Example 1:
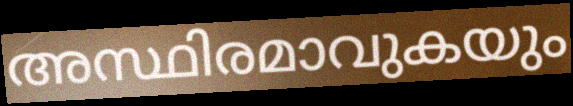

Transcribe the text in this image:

അസ്ഥിരമാവുകയും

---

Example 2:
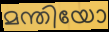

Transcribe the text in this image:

മന്തിയോ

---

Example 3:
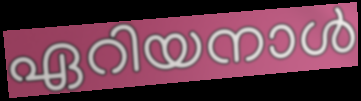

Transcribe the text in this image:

ഏറിയനാൾ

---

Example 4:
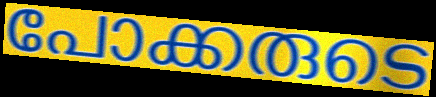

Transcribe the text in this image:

പോക്കരുടെ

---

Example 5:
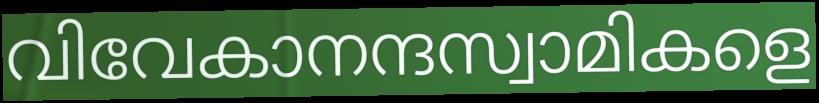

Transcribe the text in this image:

വിവേകാനന്ദസ്വാമികളെ